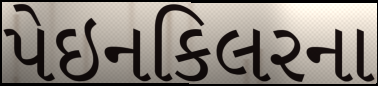
પેઇનકિલરના